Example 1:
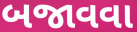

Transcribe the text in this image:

બજાવવા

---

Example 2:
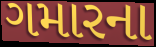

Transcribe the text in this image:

ગમારના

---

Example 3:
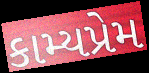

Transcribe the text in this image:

કામ્યપ્રેમ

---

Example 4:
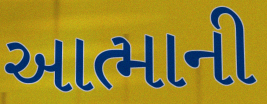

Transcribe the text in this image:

આત્માની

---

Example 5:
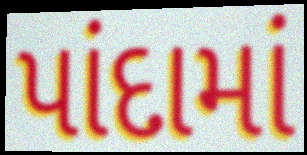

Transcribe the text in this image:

પાંદામાં